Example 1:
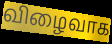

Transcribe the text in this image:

விழைவாக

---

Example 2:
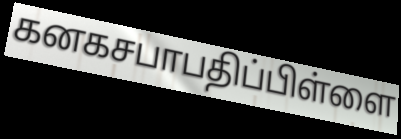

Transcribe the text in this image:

கனகசபாபதிப்பிள்ளை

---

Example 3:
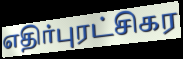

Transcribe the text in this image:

எதிர்புரட்சிகர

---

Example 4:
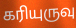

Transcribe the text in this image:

கரியுருவு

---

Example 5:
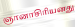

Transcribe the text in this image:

ஞானாசிரியனது